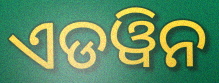
ଏଡୱିନ